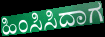
ಹಿಂಸಿಸಿದಾಗ